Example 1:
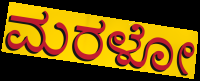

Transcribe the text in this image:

ಮರಳೋ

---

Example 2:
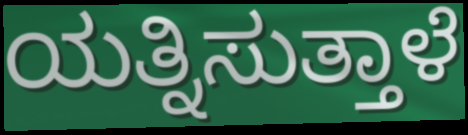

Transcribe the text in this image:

ಯತ್ನಿಸುತ್ತಾಳೆ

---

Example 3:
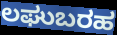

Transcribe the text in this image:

ಲಘುಬರಹ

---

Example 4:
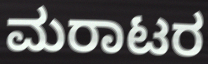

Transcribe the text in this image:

ಮರಾಟರ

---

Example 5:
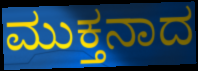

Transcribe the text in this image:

ಮುಕ್ತನಾದ